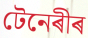
টেনেৰীৰ